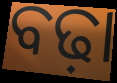
ବଢ଼ା